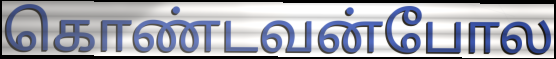
கொண்டவன்போல